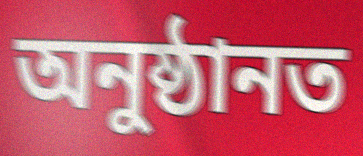
অনুষ্ঠানত